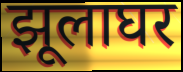
झूलाघर